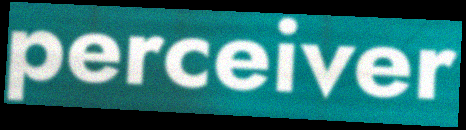
perceiver